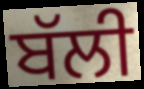
ਬੱਲੀ